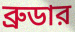
ব্রুডার